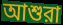
আশুরা